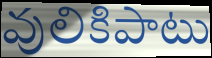
వులికిపాటు